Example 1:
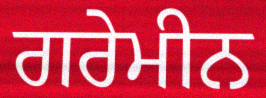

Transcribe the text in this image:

ਗਰੇਮੀਨ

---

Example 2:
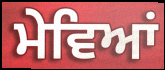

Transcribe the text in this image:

ਮੇਵਿਆਂ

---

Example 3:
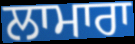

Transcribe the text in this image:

ਲਾਮਾਰਾ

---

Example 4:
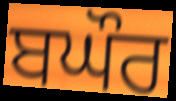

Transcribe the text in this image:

ਬਘੌਰ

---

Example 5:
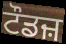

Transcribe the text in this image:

ਟੌਡਜ਼